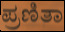
ಪ್ರಣಿತಾ